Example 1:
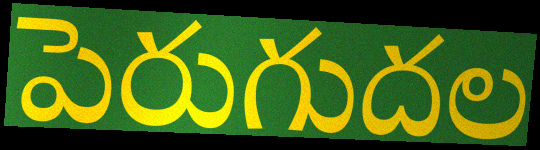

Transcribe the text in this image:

పెరుగుదల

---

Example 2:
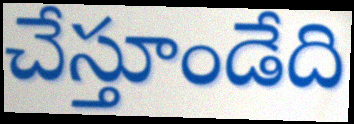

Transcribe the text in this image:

చేస్తూండేది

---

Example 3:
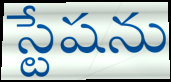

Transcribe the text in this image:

స్టేషను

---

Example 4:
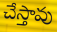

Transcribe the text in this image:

చేస్తావు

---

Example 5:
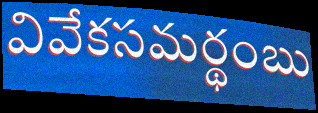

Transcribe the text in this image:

వివేకసమర్థంబు